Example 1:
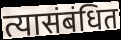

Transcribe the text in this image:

त्यासंबंधित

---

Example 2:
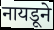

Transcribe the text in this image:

नायडूने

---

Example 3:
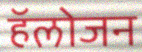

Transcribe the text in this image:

हॅलोजन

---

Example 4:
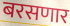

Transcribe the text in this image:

बरसणार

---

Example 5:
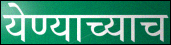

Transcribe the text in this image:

येण्याच्याच